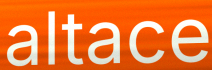
altace